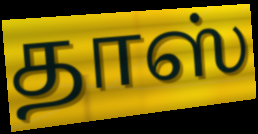
தாஸ்